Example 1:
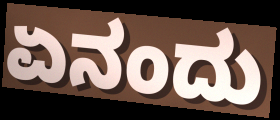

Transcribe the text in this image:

ಏನಂದು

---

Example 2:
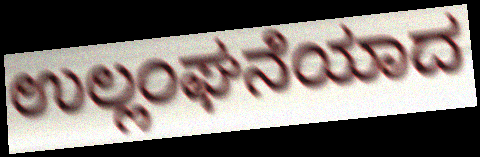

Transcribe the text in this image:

ಉಲ್ಲಂಘನೆಯಾದ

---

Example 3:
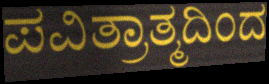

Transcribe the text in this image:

ಪವಿತ್ರಾತ್ಮದಿಂದ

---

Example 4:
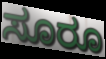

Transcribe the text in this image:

ಸೂರೂ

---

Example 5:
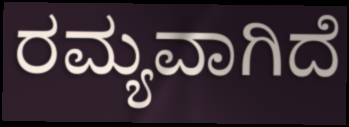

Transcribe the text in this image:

ರಮ್ಯವಾಗಿದೆ